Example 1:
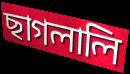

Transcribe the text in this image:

ছাগলালি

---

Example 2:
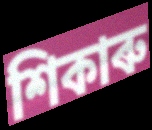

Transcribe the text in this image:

শিকাৰু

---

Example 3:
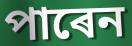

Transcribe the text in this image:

পাৰেন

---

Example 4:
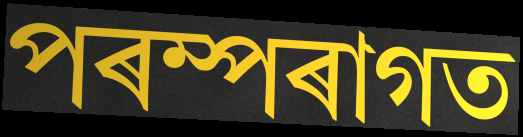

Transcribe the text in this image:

পৰম্পৰাগত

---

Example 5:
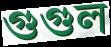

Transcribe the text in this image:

গুগুল